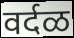
वर्दळ